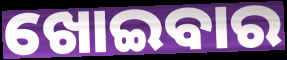
ଖୋଇବାର